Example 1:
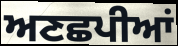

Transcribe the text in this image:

ਅਣਛਪੀਆਂ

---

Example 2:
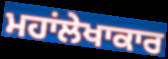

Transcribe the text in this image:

ਮਹਾਂਲੇਖਾਕਾਰ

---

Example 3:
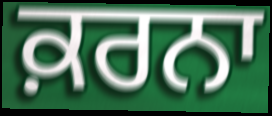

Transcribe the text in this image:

ਕ਼ਰਨਾ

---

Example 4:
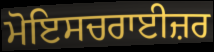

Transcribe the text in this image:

ਮੋਇਸਚਰਾਈਜ਼ਰ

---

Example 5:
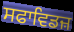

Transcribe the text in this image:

ਸਫਾਵਿਡਜ਼